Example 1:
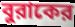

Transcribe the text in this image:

বুরাকের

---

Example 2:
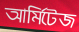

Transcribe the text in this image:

আর্মিটেজ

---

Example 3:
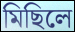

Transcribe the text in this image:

মিছিলে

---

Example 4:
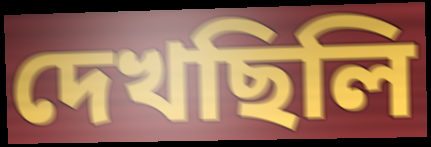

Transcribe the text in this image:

দেখছিলি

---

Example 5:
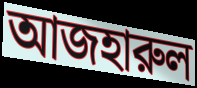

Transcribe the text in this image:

আজহারুল